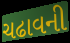
ચઢાવની